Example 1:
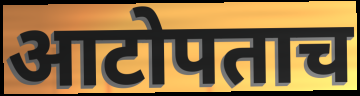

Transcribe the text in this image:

आटोपताच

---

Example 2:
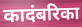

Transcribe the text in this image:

कादंबरिका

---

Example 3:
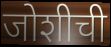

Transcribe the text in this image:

जोशीची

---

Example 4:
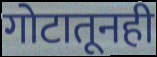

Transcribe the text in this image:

गोटातूनही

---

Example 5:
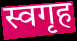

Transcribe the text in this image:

स्वगृह